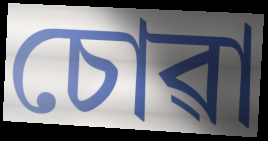
চোৱা